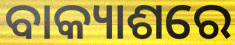
ବାକ୍ୟାଶରେ